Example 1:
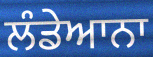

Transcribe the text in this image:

ਲੰਡੇਆਨਾ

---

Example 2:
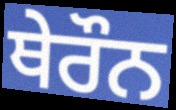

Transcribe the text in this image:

ਥੇਰੌਨ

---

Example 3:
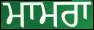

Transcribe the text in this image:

ਮਾਮਰਾ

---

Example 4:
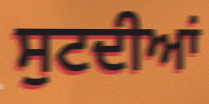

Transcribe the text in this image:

ਸੁਟਦੀਆਂ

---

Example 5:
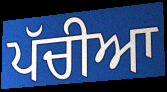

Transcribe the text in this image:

ਪੱਚੀਆ